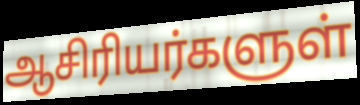
ஆசிரியர்களுள்